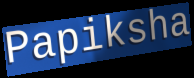
Papiksha